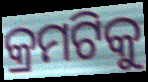
କ୍ରମଟିକୁ